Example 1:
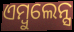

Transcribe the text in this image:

ଏମ୍ବୁଲେନ୍ସ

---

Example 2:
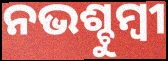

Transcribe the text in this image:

ନଭଶ୍ଚୁମ୍ବୀ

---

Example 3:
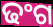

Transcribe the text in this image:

ଢଂଗ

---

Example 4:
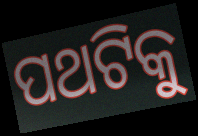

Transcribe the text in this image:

ପଥଟିକୁ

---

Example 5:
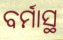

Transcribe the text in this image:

ବର୍ମାସ୍ଥ